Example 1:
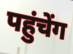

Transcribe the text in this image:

पहुंचेंग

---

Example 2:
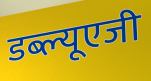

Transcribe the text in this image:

डब्ल्यूएजी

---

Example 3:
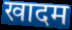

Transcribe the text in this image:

खादम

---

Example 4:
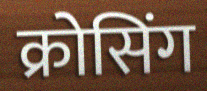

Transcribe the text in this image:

क्रोसिंग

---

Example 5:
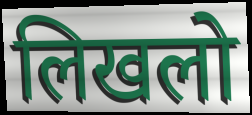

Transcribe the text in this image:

लिखलो